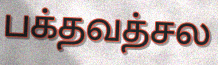
பக்தவத்சல